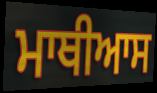
ਮਾਥੀਆਸ